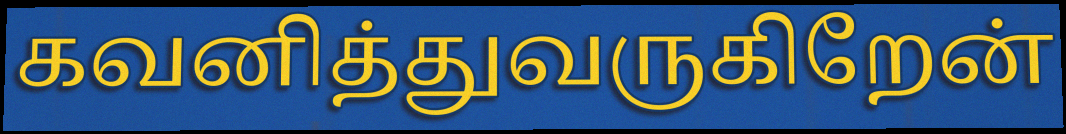
கவனித்துவருகிறேன்